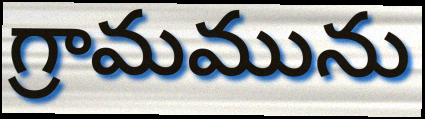
గ్రామమును